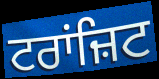
ਟਰਾਂਜ਼ਿਟ